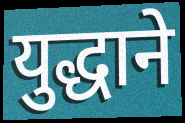
युद्धाने